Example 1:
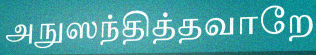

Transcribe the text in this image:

அநுஸந்தித்தவாறே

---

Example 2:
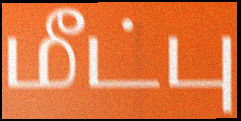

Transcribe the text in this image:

மீட்பு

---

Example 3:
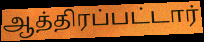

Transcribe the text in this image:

ஆத்திரப்பட்டார்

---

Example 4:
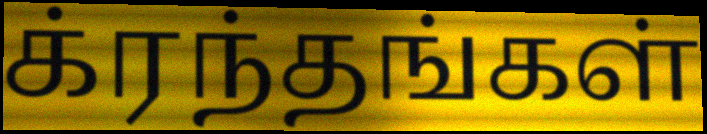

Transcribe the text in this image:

க்ரந்தங்கள்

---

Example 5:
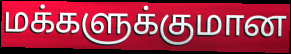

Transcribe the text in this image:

மக்களுக்குமான